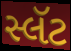
સ્લૅટ